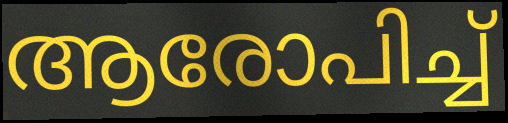
ആരോപിച്ച്